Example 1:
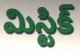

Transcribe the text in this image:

మిస్టిక్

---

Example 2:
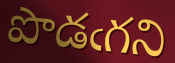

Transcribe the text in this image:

పొడఁగని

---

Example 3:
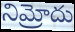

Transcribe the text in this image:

నిమ్రోదు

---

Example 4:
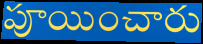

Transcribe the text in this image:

పూయించారు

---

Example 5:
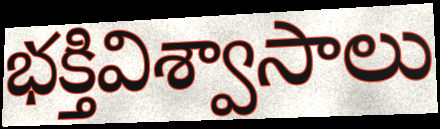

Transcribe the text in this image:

భక్తివిశ్వాసాలు